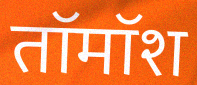
तॉमॉश